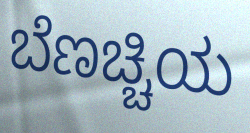
ಬೆಣಚ್ಚಿಯ